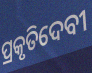
ପ୍ରକୃତିଦେବୀ